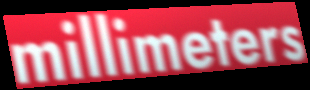
millimeters